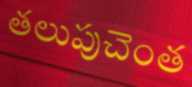
తలుపుచెంత